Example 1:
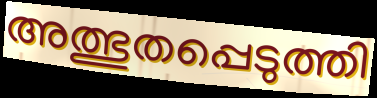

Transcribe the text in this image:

അത്ഭുതപ്പെടുത്തി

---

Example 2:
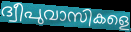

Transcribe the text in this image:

ദ്വീപുവാസികളെ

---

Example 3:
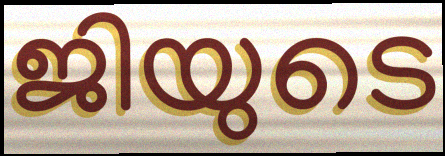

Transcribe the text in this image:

ജിയുടെ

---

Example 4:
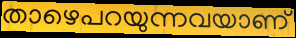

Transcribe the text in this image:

താഴെപറയുന്നവയാണ്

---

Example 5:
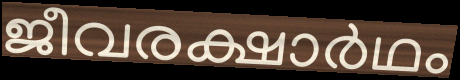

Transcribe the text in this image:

ജീവരക്ഷാർഥം